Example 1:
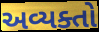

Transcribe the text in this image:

અવ્યક્તો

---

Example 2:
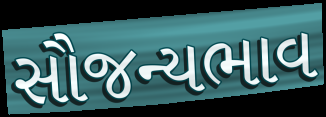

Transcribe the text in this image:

સૌજન્યભાવ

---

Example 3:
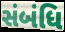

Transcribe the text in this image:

સંબંધિ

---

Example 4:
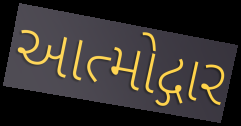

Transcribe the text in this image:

આત્મોદ્ગાર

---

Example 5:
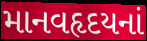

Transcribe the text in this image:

માનવહૃદયનાં